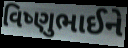
વિષ્ણુભાઈને